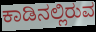
ಕಾಡಿನಲ್ಲಿರುವ